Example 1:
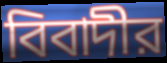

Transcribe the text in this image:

বিবাদীর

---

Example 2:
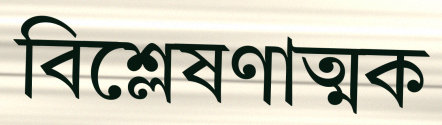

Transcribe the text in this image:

বিশ্লেষণাত্মক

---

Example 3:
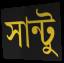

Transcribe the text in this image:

সান্টু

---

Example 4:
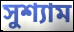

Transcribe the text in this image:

সুশ্যাম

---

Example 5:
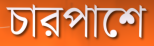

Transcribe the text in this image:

চারপাশে